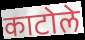
काटोले